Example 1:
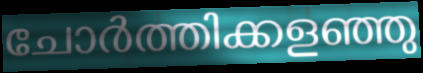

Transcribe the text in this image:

ചോർത്തിക്കളഞ്ഞു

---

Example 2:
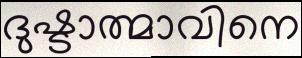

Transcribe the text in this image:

ദുഷ്ടാത്മാവിനെ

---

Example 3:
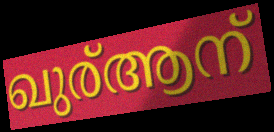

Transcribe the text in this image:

ഖുര്ആന്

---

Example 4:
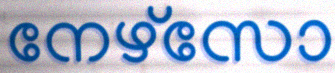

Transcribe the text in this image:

നേഴ്സോ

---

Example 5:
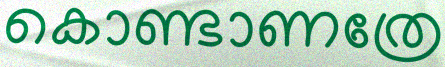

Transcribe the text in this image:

കൊണ്ടാണത്രേ